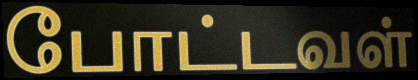
போட்டவள்